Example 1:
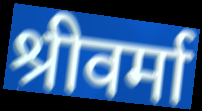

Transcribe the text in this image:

श्रीवर्मा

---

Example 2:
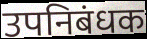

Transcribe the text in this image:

उपनिबंधक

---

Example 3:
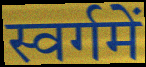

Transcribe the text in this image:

स्वर्गमें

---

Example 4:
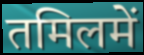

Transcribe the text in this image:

तमिलमें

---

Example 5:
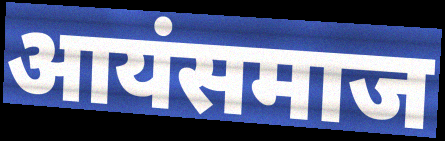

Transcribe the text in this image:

आयंसमाज